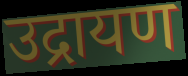
उद्रायण